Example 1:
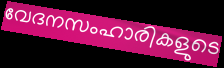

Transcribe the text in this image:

വേദനസംഹാരികളുടെ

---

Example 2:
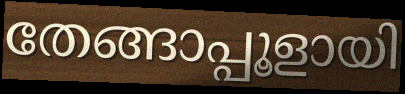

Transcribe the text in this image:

തേങ്ങാപ്പൂളായി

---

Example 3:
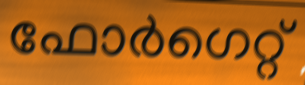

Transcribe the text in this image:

ഫോർഗെറ്റ്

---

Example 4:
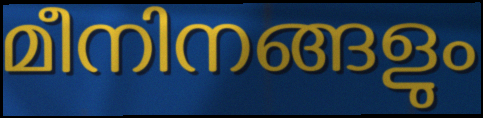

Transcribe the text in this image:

മീനിനങ്ങളും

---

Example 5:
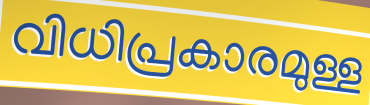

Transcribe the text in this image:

വിധിപ്രകാരമുള്ള